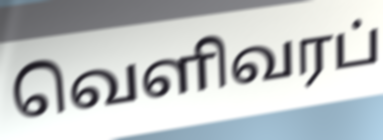
வெளிவரப்